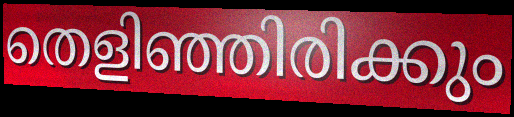
തെളിഞ്ഞിരിക്കും